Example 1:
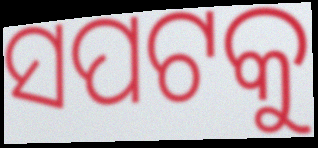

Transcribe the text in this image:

ସପଟକୁ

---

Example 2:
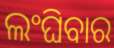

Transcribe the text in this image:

ଲଂଘିବାର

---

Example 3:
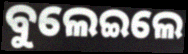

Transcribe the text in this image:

ବୁଲେଇଲେ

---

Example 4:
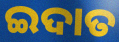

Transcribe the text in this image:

ଇଦାତ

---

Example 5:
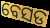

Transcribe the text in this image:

ବେସଡ